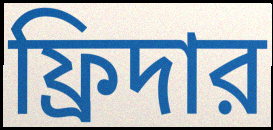
ফ্রিদার